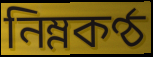
নিম্নকণ্ঠ